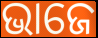
ଭାଜେ